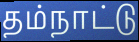
தம்நாட்டு